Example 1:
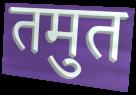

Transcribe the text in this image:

तमुत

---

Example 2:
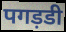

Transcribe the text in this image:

पगड़डी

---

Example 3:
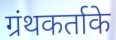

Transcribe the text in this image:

ग्रंथकर्ताके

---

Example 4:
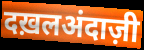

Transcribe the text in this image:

दख़लअंदाज़ी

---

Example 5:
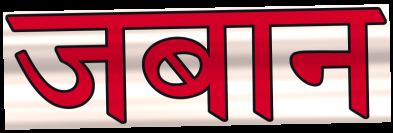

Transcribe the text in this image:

जबान